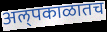
अल्पकाळातच